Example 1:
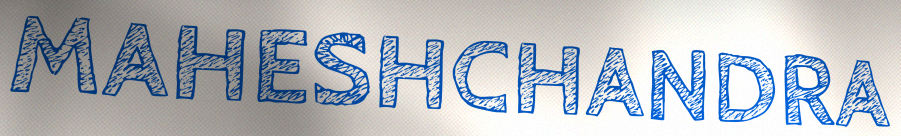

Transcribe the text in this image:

MAHESHCHANDRA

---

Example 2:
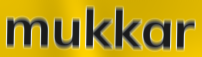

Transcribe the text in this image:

mukkar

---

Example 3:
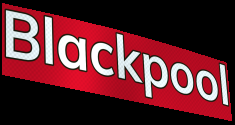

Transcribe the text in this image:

Blackpool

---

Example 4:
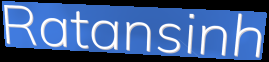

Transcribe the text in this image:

Ratansinh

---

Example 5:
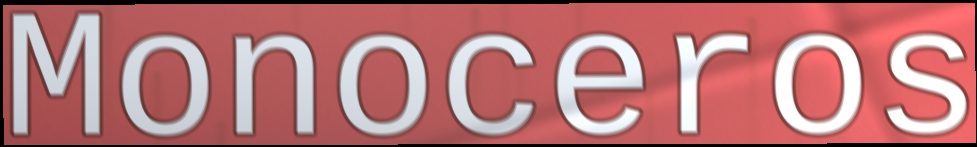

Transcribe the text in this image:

Monoceros